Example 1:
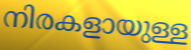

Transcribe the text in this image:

നിരകളായുള്ള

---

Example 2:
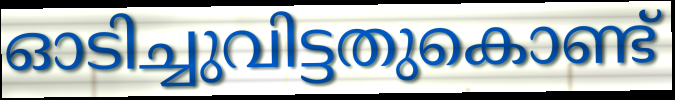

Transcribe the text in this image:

ഓടിച്ചുവിട്ടതുകൊണ്ട്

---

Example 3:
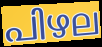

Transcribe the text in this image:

പിഴല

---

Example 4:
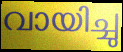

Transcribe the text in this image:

വായിച്ചു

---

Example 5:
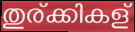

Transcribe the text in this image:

തുര്ക്കികള്